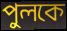
পুলকে